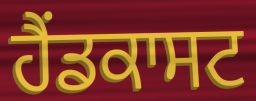
ਹੈਂਡਕਾਸਟ